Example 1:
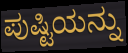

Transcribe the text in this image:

ಪುಷ್ಟಿಯನ್ನು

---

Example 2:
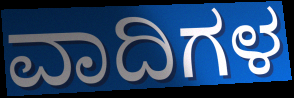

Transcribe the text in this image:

ವಾದಿಗಳ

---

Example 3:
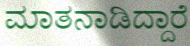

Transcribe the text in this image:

ಮಾತನಾಡಿದ್ದಾರೆ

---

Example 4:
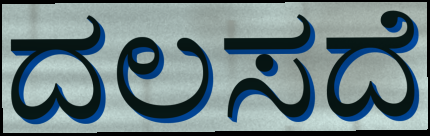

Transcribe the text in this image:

ದಲಸದೆ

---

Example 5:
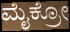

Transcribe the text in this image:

ಮೈಕ್ರೋ